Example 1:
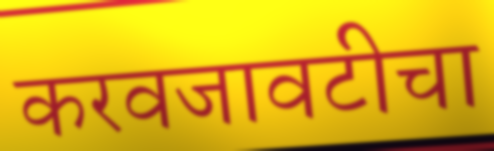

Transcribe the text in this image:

करवजावटीचा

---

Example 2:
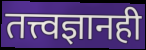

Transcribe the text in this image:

तत्त्वज्ञानही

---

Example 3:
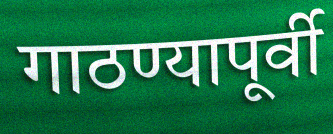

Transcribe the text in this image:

गाठण्यापूर्वी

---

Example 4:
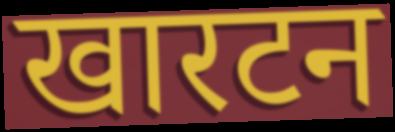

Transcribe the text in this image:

खारटन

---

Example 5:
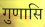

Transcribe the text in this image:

गुणासि